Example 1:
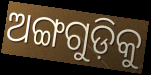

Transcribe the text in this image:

ଅଙ୍ଗଗୁଡ଼ିକୁ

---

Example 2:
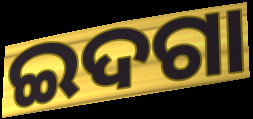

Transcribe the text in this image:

ଇଦଗା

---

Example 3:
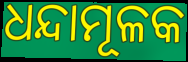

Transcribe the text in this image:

ଧନ୍ଦାମୂଳକ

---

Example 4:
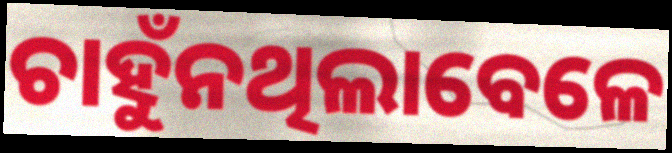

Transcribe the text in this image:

ଚାହୁଁନଥିଲାବେଳେ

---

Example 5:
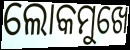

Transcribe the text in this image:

ଲୋକମୁଖେ